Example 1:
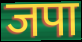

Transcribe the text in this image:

जपा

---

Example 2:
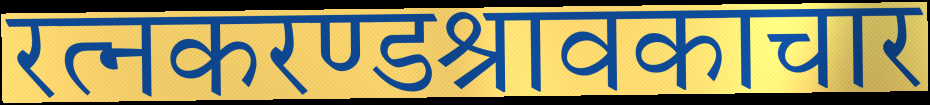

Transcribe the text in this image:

रत्नकरण्डश्रावकाचार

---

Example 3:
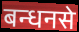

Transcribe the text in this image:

बन्धनसे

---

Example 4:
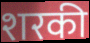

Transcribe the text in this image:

शरकी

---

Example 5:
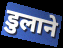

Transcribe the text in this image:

डुलाने